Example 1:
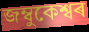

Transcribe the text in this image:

জম্বুকেশ্বৰ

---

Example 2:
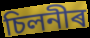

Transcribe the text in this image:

চিলনীৰ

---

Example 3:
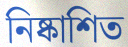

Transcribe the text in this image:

নিষ্কাশিত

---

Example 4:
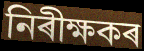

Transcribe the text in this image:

নিৰীক্ষকৰ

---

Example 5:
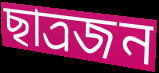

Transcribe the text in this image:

ছাত্ৰজন